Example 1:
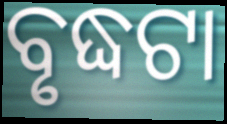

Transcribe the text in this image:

ବୃଦ୍ଧଟା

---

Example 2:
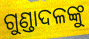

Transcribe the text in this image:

ଗୁଣ୍ଡାଦଳଙ୍କୁ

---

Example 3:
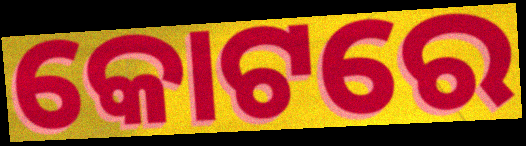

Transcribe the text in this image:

କୋଟରେ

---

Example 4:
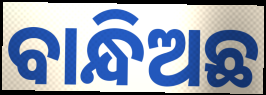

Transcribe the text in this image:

ବାନ୍ଧିଅଛ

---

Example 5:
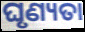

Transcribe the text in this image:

ଘୃଣ୍ୟତା